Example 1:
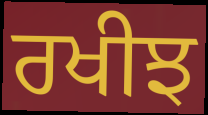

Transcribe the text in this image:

ਰਖੀਝ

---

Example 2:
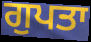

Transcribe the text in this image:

ਗੁਪਤਾ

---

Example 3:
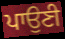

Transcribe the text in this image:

ਪਾਉਣੀ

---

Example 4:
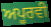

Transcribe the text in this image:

ਅਪੂਰਵੀ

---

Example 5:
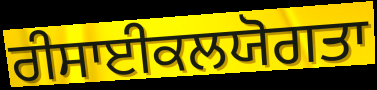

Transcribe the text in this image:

ਰੀਸਾਈਕਲਯੋਗਤਾ